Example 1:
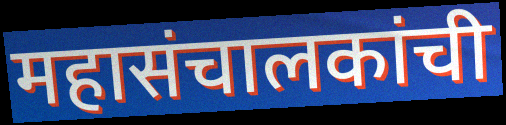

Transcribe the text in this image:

महासंचालकांची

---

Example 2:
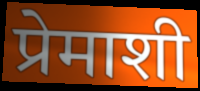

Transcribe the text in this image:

प्रेमाशी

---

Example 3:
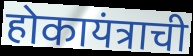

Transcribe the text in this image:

होकायंत्राची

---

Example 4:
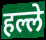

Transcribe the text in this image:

हल्ले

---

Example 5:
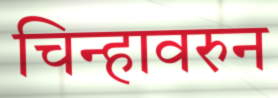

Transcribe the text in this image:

चिन्हावरुन